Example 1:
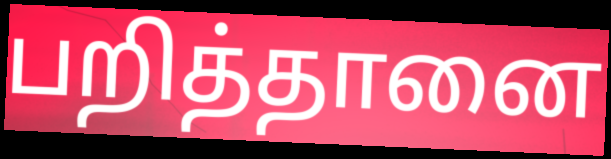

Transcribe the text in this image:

பறித்தானை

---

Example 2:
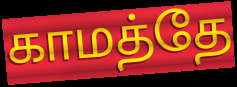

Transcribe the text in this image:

காமத்தே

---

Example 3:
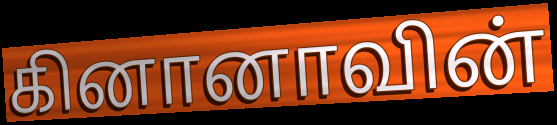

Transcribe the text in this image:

கினானாவின்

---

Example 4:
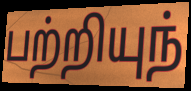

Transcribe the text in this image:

பற்றியுந்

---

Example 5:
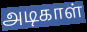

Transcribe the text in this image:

அடிகாள்